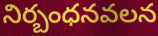
నిర్బంధనవలన